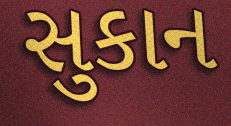
સુકાન